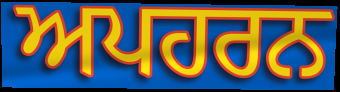
ਅਪਹਰਨ